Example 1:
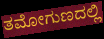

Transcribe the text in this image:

ತಮೋಗುಣದಲ್ಲಿ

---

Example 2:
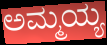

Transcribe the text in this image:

ಅಮ್ಮಯ್ಯ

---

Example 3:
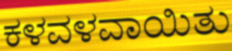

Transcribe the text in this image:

ಕಳವಳವಾಯಿತು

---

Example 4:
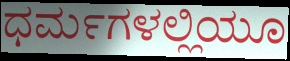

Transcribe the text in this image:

ಧರ್ಮಗಳಲ್ಲಿಯೂ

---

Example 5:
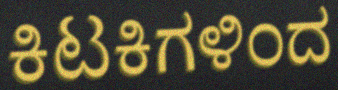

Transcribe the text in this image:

ಕಿಟಕಿಗಳಿಂದ